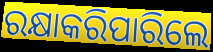
ରକ୍ଷାକରିପାରିଲେ